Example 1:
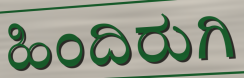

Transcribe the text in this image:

ಹಿಂದಿರುಗಿ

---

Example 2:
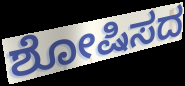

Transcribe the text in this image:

ಶೋಷಿಸದ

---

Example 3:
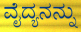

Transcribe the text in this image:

ವೈದ್ಯನನ್ನು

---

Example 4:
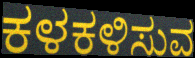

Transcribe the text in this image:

ಕಳಕಳಿಸುವ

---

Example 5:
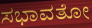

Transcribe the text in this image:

ಸಭಾವತೋ